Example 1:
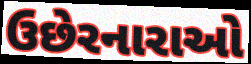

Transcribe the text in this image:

ઉછેરનારાઓ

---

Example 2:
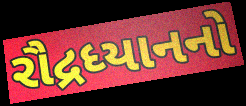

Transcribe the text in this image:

રૌદ્રધ્યાનનો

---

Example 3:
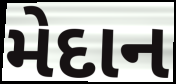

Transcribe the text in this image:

મેદાન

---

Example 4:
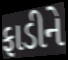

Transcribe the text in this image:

ફાડીને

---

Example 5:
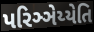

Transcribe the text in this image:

પરિઞ્ઞેય્યેતિ